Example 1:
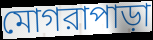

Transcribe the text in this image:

মোগরাপাড়া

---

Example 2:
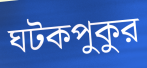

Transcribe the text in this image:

ঘটকপুকুর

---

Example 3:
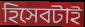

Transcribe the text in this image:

হিসেবটাই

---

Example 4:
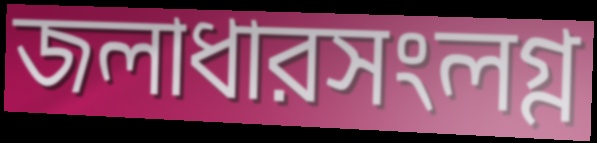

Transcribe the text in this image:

জলাধারসংলগ্ন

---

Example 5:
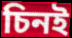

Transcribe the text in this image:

চিনই